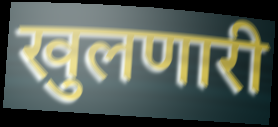
खुलणारी